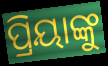
ପ୍ରିୟାଙ୍କୁ